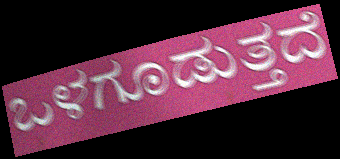
ಒಳಗೂಡುತ್ತದೆ